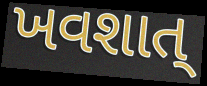
ખવશાત્